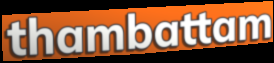
thambattam